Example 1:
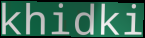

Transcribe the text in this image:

khidki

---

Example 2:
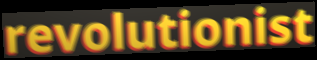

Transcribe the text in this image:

revolutionist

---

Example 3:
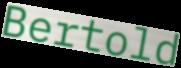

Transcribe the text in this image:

Bertold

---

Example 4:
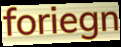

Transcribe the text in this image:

foriegn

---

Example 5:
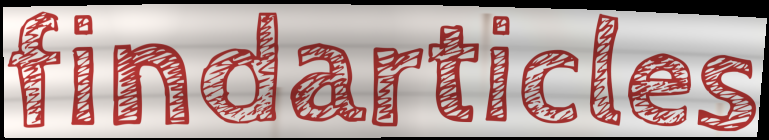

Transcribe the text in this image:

findarticles